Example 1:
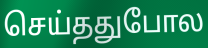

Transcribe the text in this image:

செய்ததுபோல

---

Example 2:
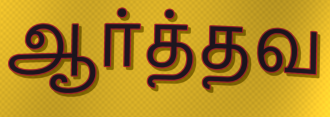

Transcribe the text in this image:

ஆர்த்தவ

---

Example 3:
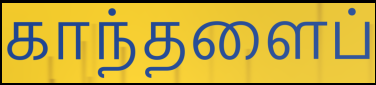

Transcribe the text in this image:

காந்தளைப்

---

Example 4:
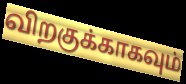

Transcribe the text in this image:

விறகுக்காகவும்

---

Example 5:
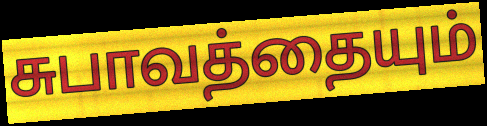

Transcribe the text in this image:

சுபாவத்தையும்